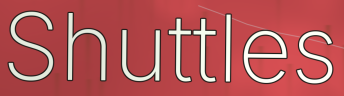
Shuttles